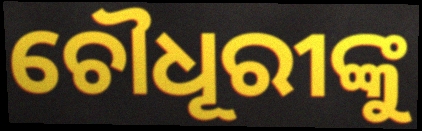
ଚୌଧୂରୀଙ୍କୁ